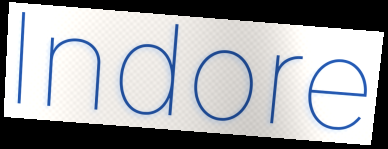
Indore